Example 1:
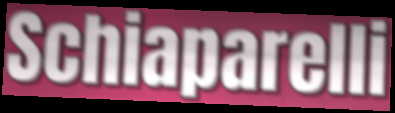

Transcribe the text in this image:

Schiaparelli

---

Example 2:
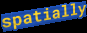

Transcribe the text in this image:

spatially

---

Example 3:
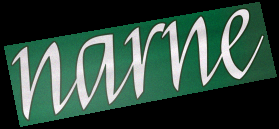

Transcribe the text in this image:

narne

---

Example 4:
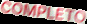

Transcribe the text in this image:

COMPLETO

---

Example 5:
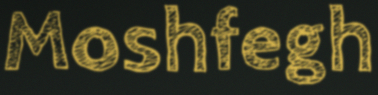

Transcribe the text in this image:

Moshfegh